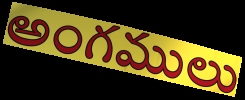
అంగములు